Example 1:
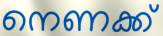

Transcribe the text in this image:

നെണക്ക്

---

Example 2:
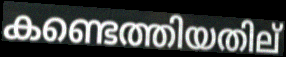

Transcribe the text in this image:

കണ്ടെത്തിയതില്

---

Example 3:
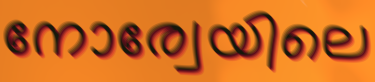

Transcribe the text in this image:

നോര്വേയിലെ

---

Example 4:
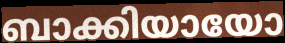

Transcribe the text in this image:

ബാക്കിയായോ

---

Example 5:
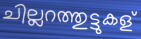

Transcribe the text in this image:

ചില്ലറത്തുട്ടുകള്